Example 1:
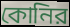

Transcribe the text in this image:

কোনির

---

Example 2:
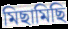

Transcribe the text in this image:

মিছামিছি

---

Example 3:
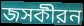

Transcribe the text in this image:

জসকীরন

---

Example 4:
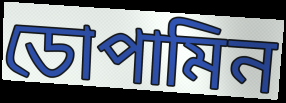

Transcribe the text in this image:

ডোপামিন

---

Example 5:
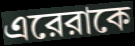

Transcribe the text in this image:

এরেরাকে